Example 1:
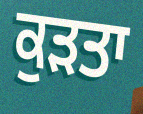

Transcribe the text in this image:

ਕੁੜਤਾ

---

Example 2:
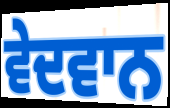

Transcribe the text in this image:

ਵੇਦਵਾਨ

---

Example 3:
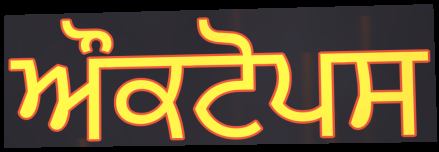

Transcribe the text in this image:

ਔਕਟੋਪਸ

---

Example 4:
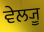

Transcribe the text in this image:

ਵੇਲ੍ਯੂ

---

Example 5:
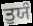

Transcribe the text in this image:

ਤੁਯੰ